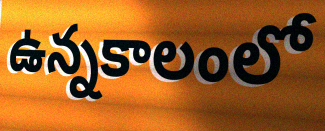
ఉన్నకాలంలో